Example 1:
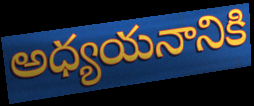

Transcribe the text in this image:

అధ్యయనానికి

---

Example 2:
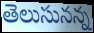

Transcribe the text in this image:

తెలుసునన్న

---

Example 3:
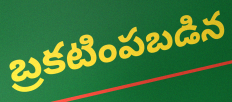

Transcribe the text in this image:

బ్రకటింపబడిన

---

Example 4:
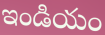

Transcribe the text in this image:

ఇండియం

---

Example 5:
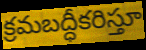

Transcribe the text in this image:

క్రమబద్ధీకరిస్తూ